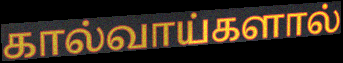
கால்வாய்களால்